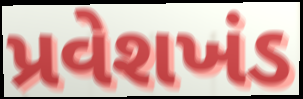
પ્રવેશખંડ